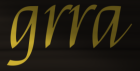
grra